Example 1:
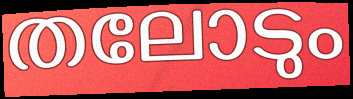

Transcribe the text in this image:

തലോടും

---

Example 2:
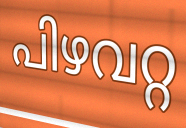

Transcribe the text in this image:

പിഴവറ്റ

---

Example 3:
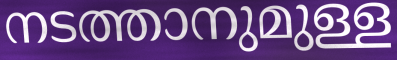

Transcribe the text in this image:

നടത്താനുമുള്ള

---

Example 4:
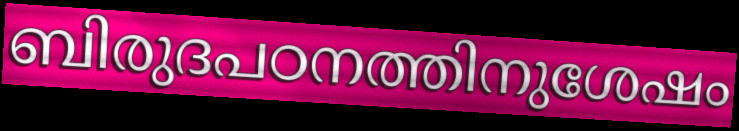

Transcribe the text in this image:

ബിരുദപഠനത്തിനുശേഷം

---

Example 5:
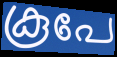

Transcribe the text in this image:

കൂപേ